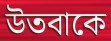
উতবাকে